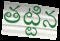
తట్టిన